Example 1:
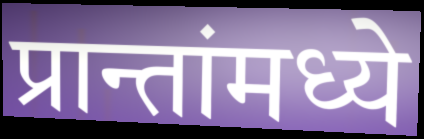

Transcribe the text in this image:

प्रान्तांमध्ये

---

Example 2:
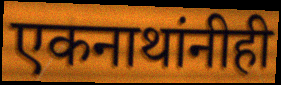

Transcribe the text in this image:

एकनाथांनीही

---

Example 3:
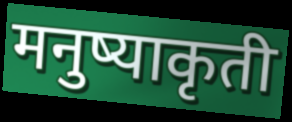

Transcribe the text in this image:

मनुष्याकृती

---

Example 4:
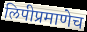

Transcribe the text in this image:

लिपीप्रमाणेच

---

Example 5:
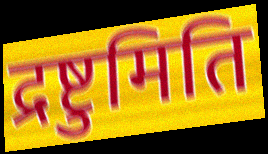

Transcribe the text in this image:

द्रष्टुमिति